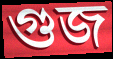
গুজ